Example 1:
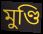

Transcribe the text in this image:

মুণ্ডি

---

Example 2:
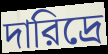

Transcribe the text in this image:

দারিদ্রে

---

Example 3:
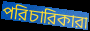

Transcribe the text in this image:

পরিচারিকারা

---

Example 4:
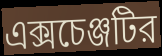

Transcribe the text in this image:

এক্সচেঞ্জটির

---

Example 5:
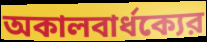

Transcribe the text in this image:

অকালবার্ধক্যের